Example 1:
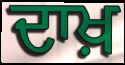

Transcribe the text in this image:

ਦਾਖ਼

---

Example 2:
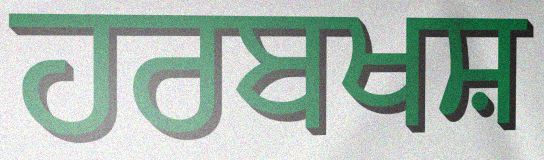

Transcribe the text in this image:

ਹਰਬਖਸ਼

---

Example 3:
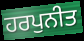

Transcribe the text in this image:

ਹਰਪੁਨੀਤ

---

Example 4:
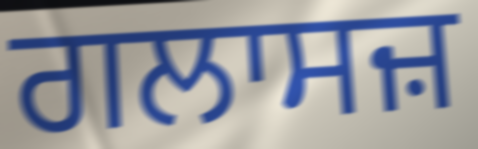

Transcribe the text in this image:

ਗਲਾਸਜ਼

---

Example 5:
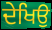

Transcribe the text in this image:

ਦੇਖਿਉ